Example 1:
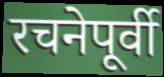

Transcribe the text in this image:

रचनेपूर्वी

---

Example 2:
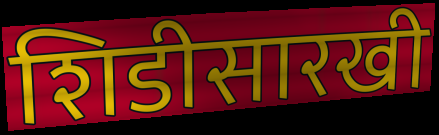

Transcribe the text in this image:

शिडीसारखी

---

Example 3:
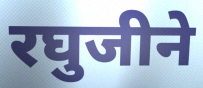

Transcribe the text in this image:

रघुजीने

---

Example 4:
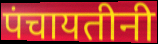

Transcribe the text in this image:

पंचायतीनी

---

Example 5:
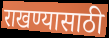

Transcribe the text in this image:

राखण्यासाठी